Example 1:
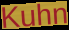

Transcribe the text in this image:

Kuhn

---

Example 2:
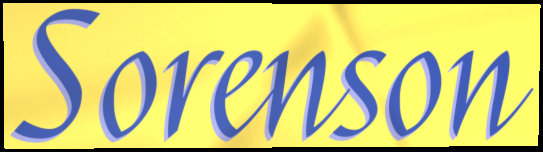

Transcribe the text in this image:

Sorenson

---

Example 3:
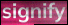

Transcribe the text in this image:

signify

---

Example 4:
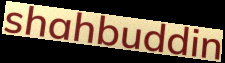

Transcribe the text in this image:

shahbuddin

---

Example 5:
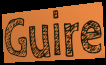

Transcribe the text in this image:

Guire